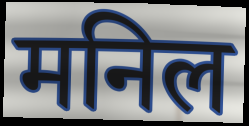
मनिल